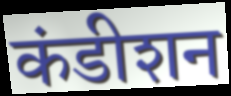
कंडीशन